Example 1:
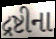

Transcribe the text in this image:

દ્રષ્ટીના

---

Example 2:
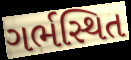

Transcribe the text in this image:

ગર્ભસ્થિત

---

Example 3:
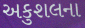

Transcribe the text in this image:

અકુશલના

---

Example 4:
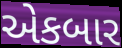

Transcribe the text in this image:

એકબાર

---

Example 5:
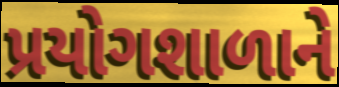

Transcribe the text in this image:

પ્રયોગશાળાને